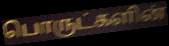
பொருட்களின்